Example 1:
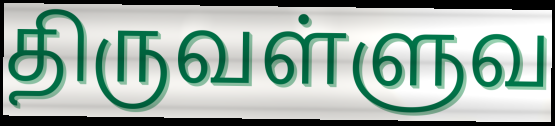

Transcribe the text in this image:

திருவள்ளுவ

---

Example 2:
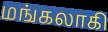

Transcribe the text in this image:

மங்கலாகி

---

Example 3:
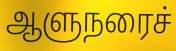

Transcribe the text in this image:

ஆளுநரைச்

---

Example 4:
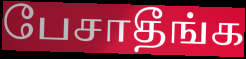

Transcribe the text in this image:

பேசாதீங்க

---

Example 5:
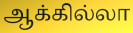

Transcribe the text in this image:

ஆக்கில்லா